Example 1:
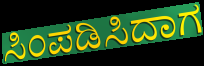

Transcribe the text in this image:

ಸಿಂಪಡಿಸಿದಾಗ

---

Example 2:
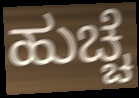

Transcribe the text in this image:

ಹುಚ್ಚೆ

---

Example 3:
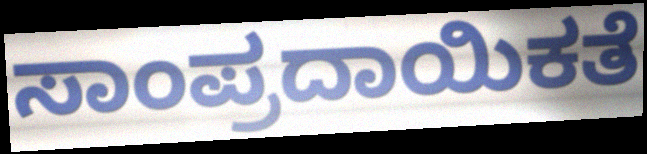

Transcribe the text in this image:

ಸಾಂಪ್ರದಾಯಿಕತೆ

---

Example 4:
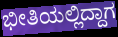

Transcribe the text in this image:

ಭೀತಿಯಲ್ಲಿದ್ದಾಗ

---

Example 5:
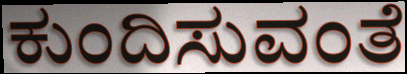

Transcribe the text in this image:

ಕುಂದಿಸುವಂತೆ